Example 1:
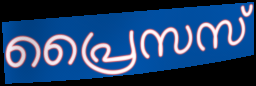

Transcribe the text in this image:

പ്രൈസസ്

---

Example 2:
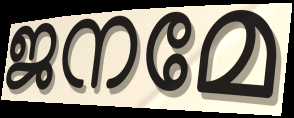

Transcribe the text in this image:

ജനമേ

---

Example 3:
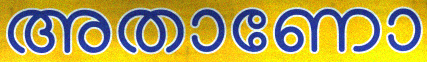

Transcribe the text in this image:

അതാണോ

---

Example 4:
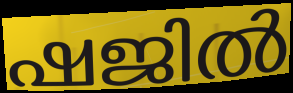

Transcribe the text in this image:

ഷജിൽ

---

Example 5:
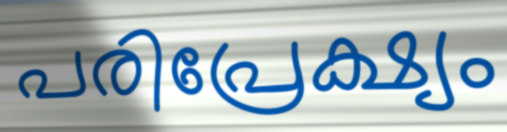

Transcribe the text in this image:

പരിപ്രേക്ഷ്യം